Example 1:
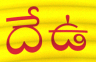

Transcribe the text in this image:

దేఉ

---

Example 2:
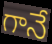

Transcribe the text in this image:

గానే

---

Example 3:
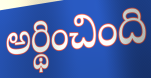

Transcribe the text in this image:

అర్థించింది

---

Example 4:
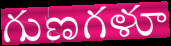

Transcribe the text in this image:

గుణగళూ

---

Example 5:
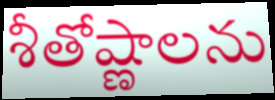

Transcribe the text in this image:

శీతోష్ణాలను